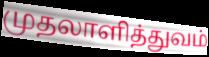
முதலாளித்துவம்